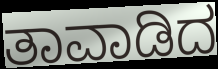
ತಾವಾಡಿದ